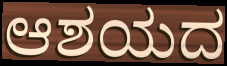
ಆಶಯದ